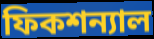
ফিকশন্যাল